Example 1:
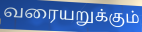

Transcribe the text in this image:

வரையறுக்கும்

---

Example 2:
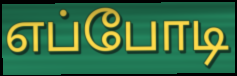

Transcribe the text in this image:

எப்போடி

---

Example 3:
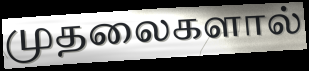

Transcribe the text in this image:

முதலைகளால்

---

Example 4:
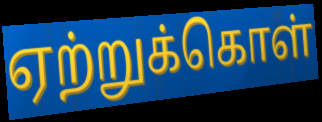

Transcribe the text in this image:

ஏற்றுக்கொள்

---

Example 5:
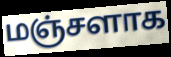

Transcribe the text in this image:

மஞ்சளாக